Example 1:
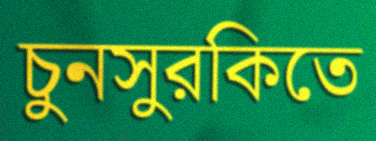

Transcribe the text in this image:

চুনসুরকিতে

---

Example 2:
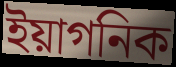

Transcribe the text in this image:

ইয়াগনিক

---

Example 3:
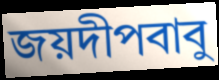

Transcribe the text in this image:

জয়দীপবাবু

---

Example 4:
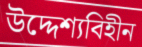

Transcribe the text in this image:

উদ্দেশ্যবিহীন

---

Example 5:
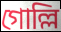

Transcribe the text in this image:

গোল্লি